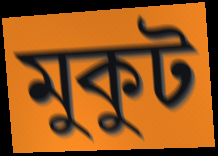
মুকুট